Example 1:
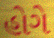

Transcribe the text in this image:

હોગે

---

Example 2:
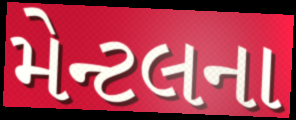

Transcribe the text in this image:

મેન્ટલના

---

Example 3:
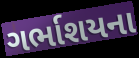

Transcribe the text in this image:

ગર્ભાશયના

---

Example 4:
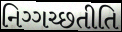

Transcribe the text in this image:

નિગ્ગચ્છતીતિ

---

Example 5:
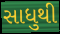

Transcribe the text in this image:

સાધુથી